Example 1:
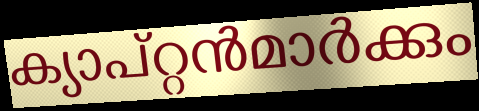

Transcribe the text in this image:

ക്യാപ്റ്റൻമാർക്കും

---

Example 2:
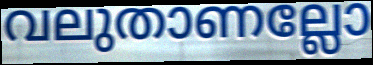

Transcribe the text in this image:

വലുതാണല്ലോ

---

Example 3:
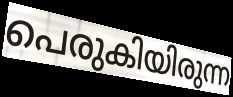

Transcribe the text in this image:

പെരുകിയിരുന്ന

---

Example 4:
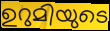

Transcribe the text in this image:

ഉറുമിയുടെ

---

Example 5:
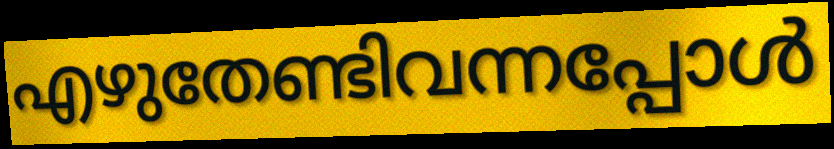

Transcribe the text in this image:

എഴുതേണ്ടിവന്നപ്പോൾ